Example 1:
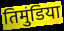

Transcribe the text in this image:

तिमुंडिया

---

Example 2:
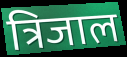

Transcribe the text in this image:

त्रिजाल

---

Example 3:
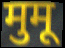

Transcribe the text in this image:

मुमू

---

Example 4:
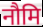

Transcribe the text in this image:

नौमि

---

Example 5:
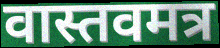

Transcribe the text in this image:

वास्तवमत्र